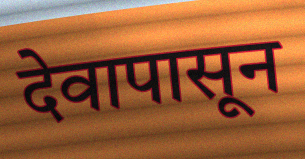
देवापासून